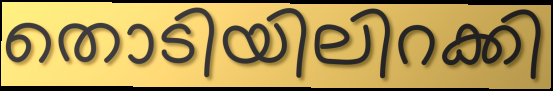
തൊടിയിലിറക്കി